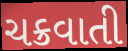
ચક્રવાતી